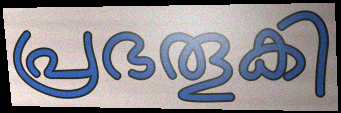
പ്രഭതൂകി